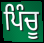
ਪਿੰਚੂ